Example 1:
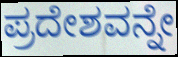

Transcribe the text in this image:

ಪ್ರದೇಶವನ್ನೇ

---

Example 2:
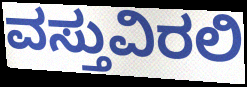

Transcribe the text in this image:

ವಸ್ತುವಿರಲಿ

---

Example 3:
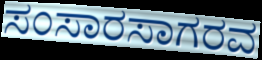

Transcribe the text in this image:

ಸಂಸಾರಸಾಗರವ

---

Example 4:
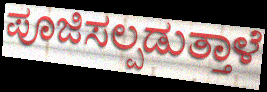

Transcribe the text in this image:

ಪೂಜಿಸಲ್ಪಡುತ್ತಾಳೆ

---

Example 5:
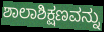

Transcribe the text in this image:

ಶಾಲಾಶಿಕ್ಷಣವನ್ನು